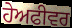
ਹੇਅਫੀਵਰ